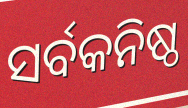
ସର୍ବକନିଷ୍ଠ